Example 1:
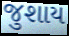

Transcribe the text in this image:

જુશાય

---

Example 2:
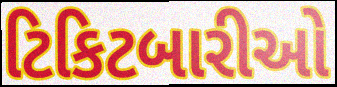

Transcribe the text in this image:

ટિકિટબારીઓ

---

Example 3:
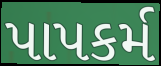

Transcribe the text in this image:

પાપકર્મ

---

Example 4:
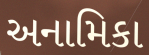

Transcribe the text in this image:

અનામિકા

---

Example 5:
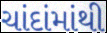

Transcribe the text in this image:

ચાંદાંમાંથી